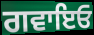
ਗਵਾਇਓ